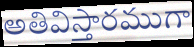
అతివిస్తారముగా